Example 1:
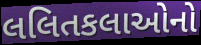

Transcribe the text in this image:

લલિતકલાઓનો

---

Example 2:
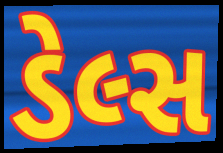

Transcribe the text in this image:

ડેલ્સ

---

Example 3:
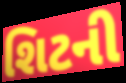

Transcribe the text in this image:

શિટની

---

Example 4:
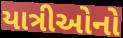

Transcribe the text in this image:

યાત્રીઓનો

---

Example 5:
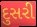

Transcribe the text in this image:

દુસરી